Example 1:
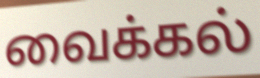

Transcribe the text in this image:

வைக்கல்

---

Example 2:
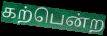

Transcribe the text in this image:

கற்பென்ற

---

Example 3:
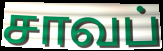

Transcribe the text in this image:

சாவப்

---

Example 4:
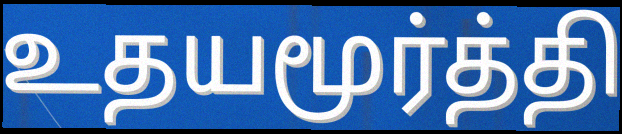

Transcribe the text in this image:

உதயமூர்த்தி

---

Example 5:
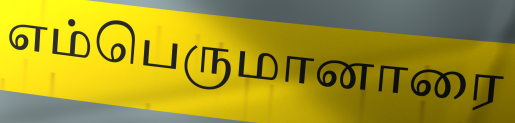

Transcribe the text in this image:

எம்பெருமானாரை